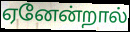
ஏனேன்றால்